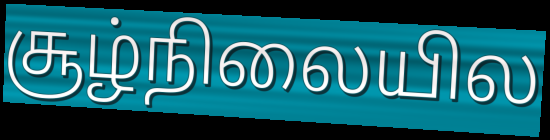
சூழ்நிலையில